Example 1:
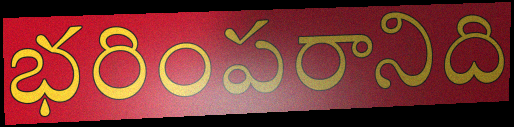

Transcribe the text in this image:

భరింపరానిది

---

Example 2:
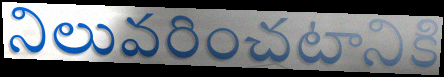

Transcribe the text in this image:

నిలువరించటానికి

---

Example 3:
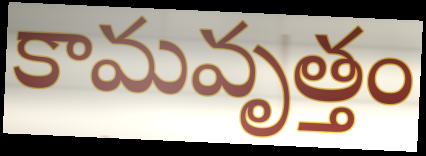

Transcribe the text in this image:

కామవృత్తం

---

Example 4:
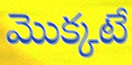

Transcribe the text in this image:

మొక్కటే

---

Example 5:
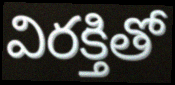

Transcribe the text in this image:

విరక్తితో